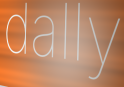
dally